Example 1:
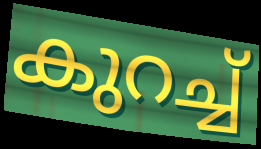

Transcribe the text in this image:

കുറച്ച്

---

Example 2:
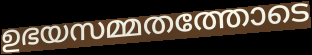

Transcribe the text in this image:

ഉഭയസമ്മതത്തോടെ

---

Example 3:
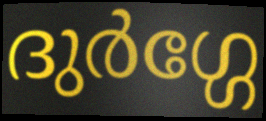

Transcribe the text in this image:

ദുർഗ്ഗേ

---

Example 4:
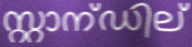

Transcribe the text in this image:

സ്റ്റാന്ഡില്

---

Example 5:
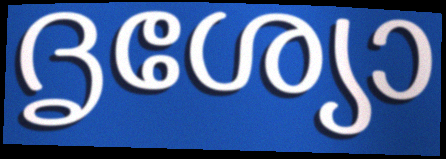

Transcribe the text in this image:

ദൃശ്യോ